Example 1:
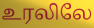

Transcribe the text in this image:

உரலிலே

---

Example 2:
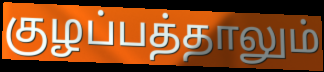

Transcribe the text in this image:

குழப்பத்தாலும்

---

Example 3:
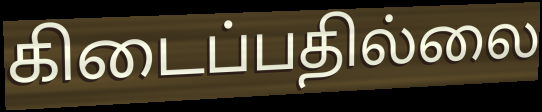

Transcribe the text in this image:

கிடைப்பதில்லை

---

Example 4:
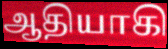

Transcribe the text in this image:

ஆதியாகி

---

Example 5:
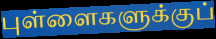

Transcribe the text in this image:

புள்ளைகளுக்குப்